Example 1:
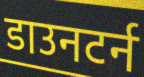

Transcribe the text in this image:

डाउनटर्न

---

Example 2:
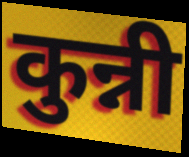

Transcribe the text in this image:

कुन्नी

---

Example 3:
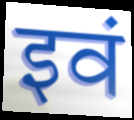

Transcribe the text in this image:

इवं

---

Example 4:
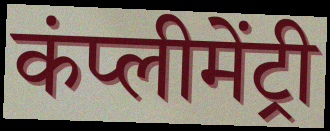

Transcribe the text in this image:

कंप्लीमेंट्री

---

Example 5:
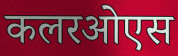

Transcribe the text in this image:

कलरओएस